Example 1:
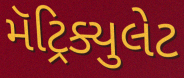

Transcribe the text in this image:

મૅટ્રિક્યુલેટ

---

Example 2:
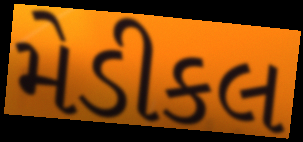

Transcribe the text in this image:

મેડીકલ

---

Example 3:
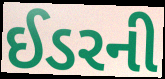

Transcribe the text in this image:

ઈડરની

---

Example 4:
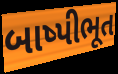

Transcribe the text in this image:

બાષ્પીભૂત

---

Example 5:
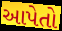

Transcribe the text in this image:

આપેતો